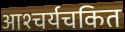
आश्चर्यचकित